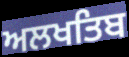
ਅਲਖਤਿਬ